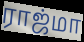
ராஜ்மா